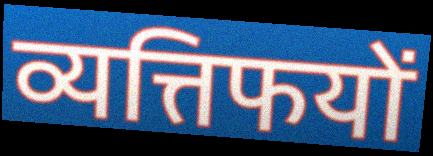
व्यत्तिफयों